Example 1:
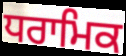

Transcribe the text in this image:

ਧਰਾਮਿਕ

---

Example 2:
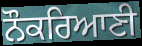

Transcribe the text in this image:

ਨੌਕਰਿਆਣੀ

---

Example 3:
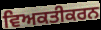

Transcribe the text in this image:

ਵਿਅਕਤੀਕਰਨ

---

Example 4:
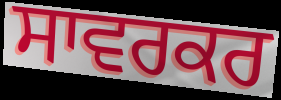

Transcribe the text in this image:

ਸਾਵਰਕਰ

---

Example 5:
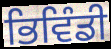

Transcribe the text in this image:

ਭਿਵਿੰਡੀ